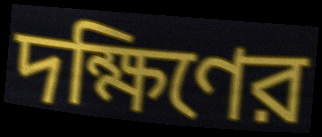
দক্ষিণের